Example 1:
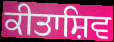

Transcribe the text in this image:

ਕੀਤਾਸ਼ਿਵ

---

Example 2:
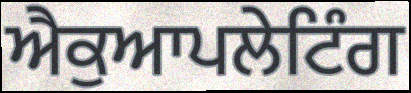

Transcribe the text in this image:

ਐਕੁਆਪਲੇਟਿੰਗ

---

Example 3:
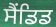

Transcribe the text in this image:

ਸੈਂਡਿਡ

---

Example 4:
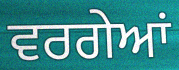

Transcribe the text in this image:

ਵਰਗੇਆਂ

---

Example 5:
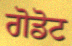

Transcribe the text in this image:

ਗੋਡੋਟ